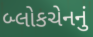
બ્લોકચેનનું